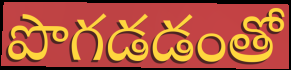
పొగడడంతో